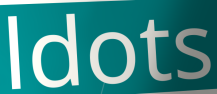
ldots